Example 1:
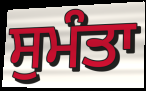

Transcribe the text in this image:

ਸੁਮੰਤਾ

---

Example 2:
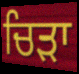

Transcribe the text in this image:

ਚਿੜਾ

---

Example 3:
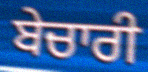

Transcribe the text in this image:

ਬੇਚਾਰੀ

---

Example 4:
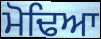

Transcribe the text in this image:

ਮੋਢਿਆ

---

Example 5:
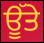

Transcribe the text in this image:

ਊੱਤੇ